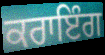
ਕਰਾਇੰਗ